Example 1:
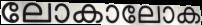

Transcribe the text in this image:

ലോകാലോക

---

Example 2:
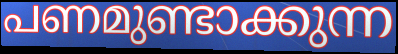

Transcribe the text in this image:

പണമുണ്ടാക്കുന്ന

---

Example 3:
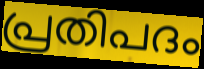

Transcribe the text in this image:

പ്രതിപദം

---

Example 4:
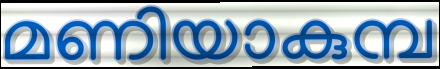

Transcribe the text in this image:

മണിയാകുമ്പ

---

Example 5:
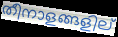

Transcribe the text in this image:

തീനാളങ്ങളില്